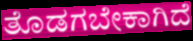
ತೊಡಗಬೇಕಾಗಿದೆ